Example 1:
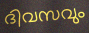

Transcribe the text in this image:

ദിവസവും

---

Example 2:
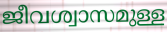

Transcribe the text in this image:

ജീവശ്വാസമുള്ള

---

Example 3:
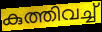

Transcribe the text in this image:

കുത്തിവച്ച്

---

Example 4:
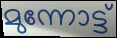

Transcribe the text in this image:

മുന്നോട്ട്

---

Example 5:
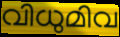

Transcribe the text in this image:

വിധുമിവ